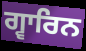
ਗ੍ਵਾਰਿਨ